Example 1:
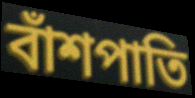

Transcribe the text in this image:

বাঁশপাতি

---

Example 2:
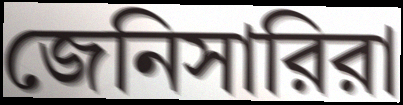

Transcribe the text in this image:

জেনিসারিরা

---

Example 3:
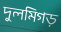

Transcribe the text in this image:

দুলমিগড়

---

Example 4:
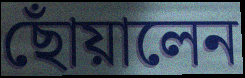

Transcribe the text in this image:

ছোঁয়ালেন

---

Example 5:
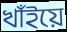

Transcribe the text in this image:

খাঁইয়ে